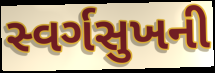
સ્વર્ગસુખની